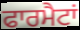
ਫਾਰਮੈਟਾਂ